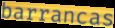
barrancas